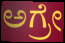
ಅಗ್ರೇ